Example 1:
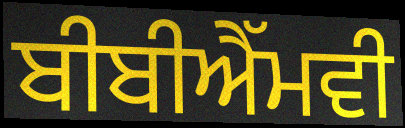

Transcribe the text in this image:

ਬੀਬੀਐੱਮਵੀ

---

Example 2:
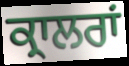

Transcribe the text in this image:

ਕ੍ਰਾਲਰਾਂ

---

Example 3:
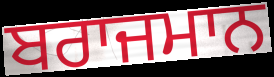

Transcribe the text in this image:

ਬਰਾਜਮਾਨ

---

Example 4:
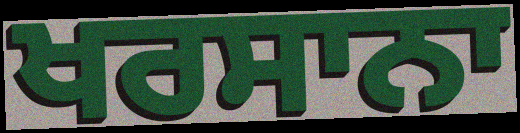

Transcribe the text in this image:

ਖਰਸਾਨਾ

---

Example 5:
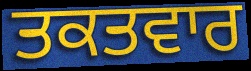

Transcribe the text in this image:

ਤਕਤਵਾਰ